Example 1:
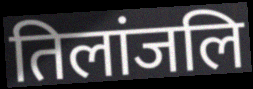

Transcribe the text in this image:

तिलांजलि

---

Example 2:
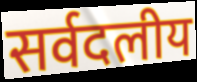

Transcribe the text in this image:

सर्वदलीय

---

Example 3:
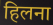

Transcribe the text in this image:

हिलना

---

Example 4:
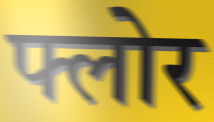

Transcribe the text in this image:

फ्लोर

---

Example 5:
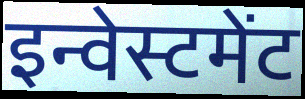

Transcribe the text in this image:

इन्वेस्टमेंट